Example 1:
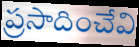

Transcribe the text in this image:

ప్రసాదించేవి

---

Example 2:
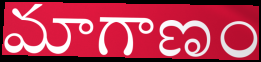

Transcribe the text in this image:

మాగాణం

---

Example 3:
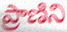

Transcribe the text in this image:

ప్రాణిని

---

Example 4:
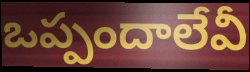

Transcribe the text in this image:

ఒప్పందాలేవీ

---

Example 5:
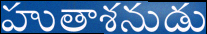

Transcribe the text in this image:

హుతాశనుడు